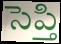
సెప్తి